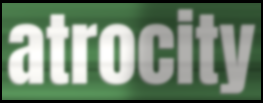
atrocity